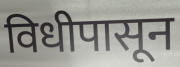
विधीपासून